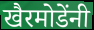
खैरमोडेंनी